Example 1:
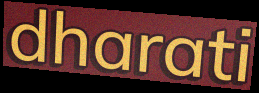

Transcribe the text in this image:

dharati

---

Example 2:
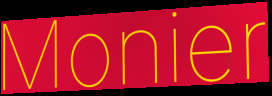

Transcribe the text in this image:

Monier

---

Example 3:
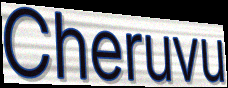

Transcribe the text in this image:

Cheruvu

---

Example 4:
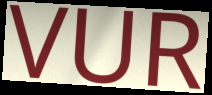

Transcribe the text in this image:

VUR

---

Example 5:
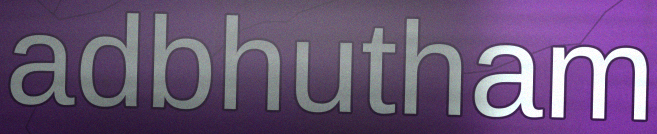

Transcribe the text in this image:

adbhutham